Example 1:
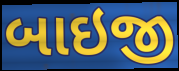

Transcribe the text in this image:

બાઇજી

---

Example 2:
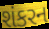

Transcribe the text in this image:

શંકરન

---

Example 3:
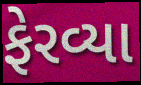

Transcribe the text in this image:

ફેરવ્યા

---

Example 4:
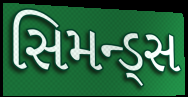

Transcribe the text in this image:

સિમન્ડ્સ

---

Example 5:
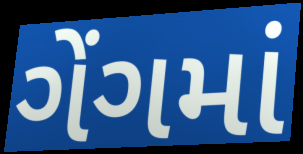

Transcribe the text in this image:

ગેંગમાં